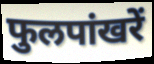
फुलपांखरें